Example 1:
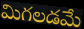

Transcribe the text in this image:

మిగలడమే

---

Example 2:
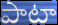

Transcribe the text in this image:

పాటా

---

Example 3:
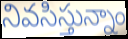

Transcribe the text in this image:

నివసిస్తున్నాం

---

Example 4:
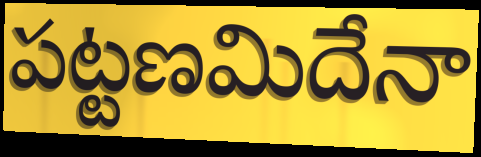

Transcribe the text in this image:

పట్టణమిదేనా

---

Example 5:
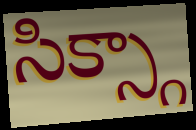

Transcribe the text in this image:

సిక్స్గా